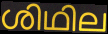
ശിഥില